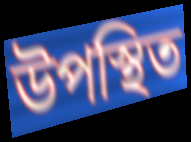
উপস্থিত